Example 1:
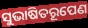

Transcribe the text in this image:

ସୁଭାଷିତରୂପେଣ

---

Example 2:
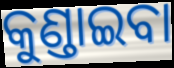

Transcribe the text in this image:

କୁଣ୍ଡାଇବା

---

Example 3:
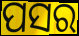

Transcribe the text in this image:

ପସର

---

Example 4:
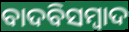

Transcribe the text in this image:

ବାଦବିସମ୍ବାଦ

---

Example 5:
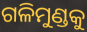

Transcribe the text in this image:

ଗଳିମୁଣ୍ଡକୁ